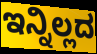
ಇನ್ನಿಲ್ಲದ